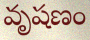
వృషణం